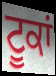
ਟੂਕਾਂ